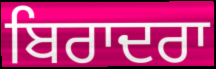
ਬਿਰਾਦਰਾ